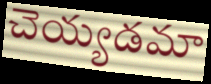
చెయ్యడమా